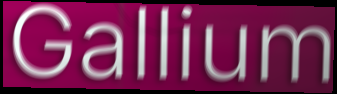
Gallium